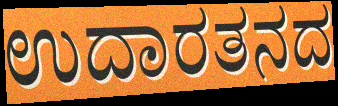
ಉದಾರತನದ